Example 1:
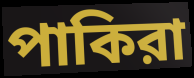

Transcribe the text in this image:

পাকিরা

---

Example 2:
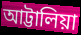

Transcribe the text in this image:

আট্টালিয়া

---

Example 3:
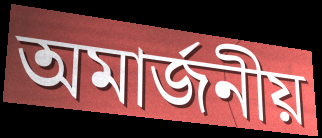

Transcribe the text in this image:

অমার্জনীয়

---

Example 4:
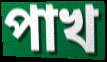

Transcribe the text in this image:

পাখ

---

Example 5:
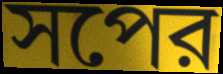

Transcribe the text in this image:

সপের